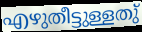
എഴുതീട്ടുള്ളതു്